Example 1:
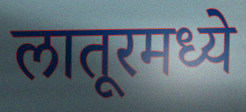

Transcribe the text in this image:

लातूरमध्ये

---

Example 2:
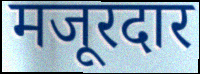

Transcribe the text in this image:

मजूरदार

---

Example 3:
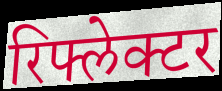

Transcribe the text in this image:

रिफ्लेक्टर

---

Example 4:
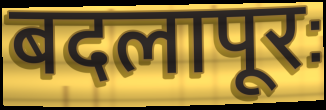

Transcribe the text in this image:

बदलापूरः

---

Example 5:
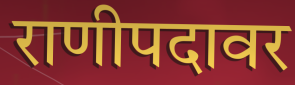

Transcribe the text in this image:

राणीपदावर